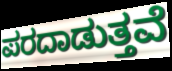
ಪರದಾಡುತ್ತವೆ